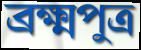
ব্ৰক্ষ্মপুত্ৰ